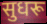
सुधरू